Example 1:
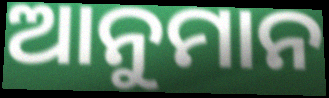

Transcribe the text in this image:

ଆନୁମାନ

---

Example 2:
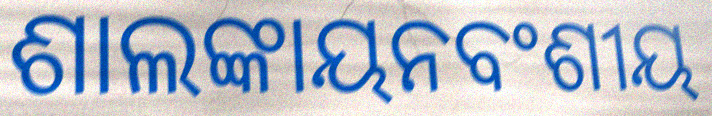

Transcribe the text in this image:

ଶାଲଙ୍କାୟନବଂଶୀୟ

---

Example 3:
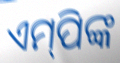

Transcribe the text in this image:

ଏମ୍‌ପିଙ୍କ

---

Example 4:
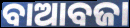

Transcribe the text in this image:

ବାଆବଜା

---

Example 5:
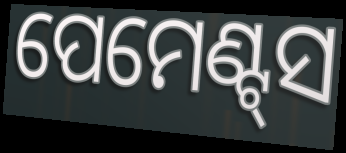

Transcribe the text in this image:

ପେମେଣ୍ଟ୍‌ସ